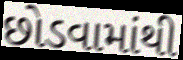
છોડવામાંથી